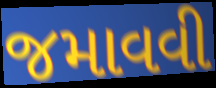
જમાવવી